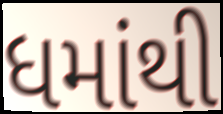
ધમાંથી